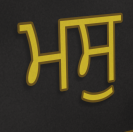
ਮਸੁ